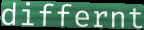
differnt